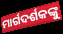
ମାର୍ଗଦର୍ଶକଙ୍କୁ